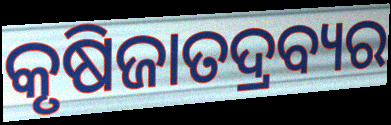
କୃଷିଜାତଦ୍ରବ୍ୟର